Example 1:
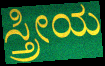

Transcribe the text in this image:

ಸ್ತ್ರೀಯ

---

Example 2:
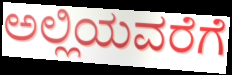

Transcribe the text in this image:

ಅಲ್ಲಿಯವರೆಗೆ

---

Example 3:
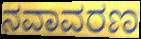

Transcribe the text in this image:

ನವಾವರಣ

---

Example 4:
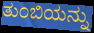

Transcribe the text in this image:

ತುಂಬಿಯನ್ನು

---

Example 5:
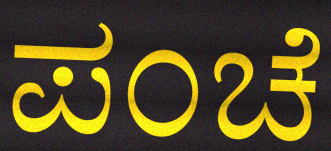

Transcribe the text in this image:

ಪಂಚೆ